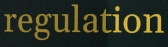
regulation